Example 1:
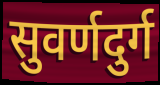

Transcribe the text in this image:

सुवर्णदुर्ग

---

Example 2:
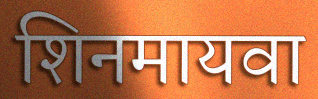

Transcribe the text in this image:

शिनमायवा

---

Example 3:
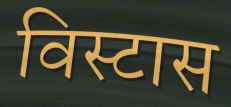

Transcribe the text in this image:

विस्टास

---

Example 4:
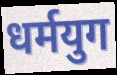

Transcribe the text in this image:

धर्मयुग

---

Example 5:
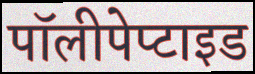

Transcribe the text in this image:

पॉलीपेप्टाइड